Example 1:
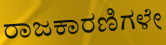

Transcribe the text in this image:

ರಾಜಕಾರಣಿಗಳೇ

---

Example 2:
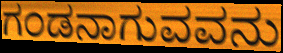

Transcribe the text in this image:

ಗಂಡನಾಗುವವನು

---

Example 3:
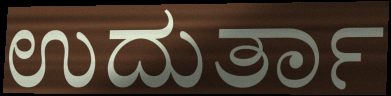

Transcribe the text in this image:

ಉದುರ್ತಾ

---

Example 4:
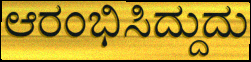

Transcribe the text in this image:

ಆರಂಭಿಸಿದ್ದುದು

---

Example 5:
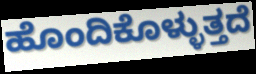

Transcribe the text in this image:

ಹೊಂದಿಕೊಳ್ಳುತ್ತದೆ